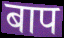
बाप